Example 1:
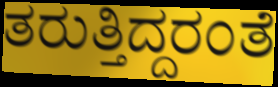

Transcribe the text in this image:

ತರುತ್ತಿದ್ದರಂತೆ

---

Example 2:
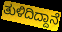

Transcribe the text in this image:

ತುಳಿದಿದ್ದಾನೆ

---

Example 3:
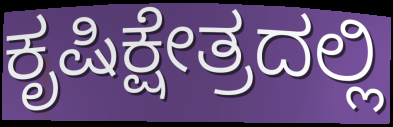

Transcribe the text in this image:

ಕೃಷಿಕ್ಷೇತ್ರದಲ್ಲಿ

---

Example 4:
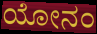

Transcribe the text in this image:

ಯೋನಂ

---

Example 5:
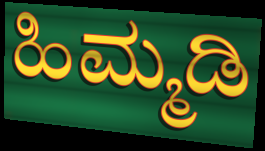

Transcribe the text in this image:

ಹಿಮ್ಮಡಿ